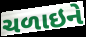
ચળાઇને